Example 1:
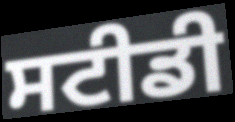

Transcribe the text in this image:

ਸਟੀਡੀ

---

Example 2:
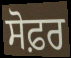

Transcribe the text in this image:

ਸੋਫ਼ਰ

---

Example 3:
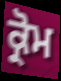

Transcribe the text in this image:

ਕ੍ਰੋਮ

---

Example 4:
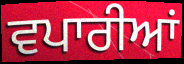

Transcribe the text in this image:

ਵਪਾਰੀਆਂ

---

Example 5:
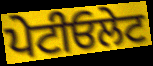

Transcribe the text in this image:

ਪੇਟੀਓਲੇਟ